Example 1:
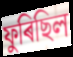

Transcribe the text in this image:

ফুৰিছিল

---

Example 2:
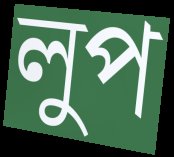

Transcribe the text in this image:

লুপ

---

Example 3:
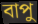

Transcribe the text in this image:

বাপু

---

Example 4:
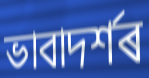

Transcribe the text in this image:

ভাবাদৰ্শৰ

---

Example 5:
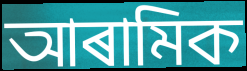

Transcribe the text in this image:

আৰামিক